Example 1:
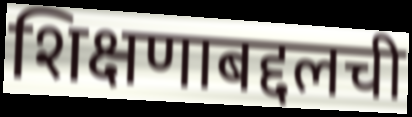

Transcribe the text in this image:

शिक्षणाबद्दलची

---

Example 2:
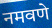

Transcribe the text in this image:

नमवणे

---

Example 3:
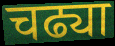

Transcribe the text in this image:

चढ्या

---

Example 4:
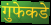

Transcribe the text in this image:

गुंफेकडे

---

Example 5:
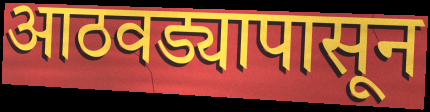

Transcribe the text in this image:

आठवड्यापासून